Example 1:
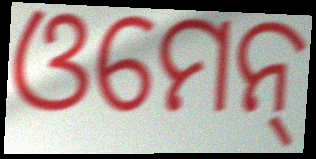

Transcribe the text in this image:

ଓମେନ୍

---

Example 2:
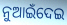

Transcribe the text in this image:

ନୁଆଇଁଦେଇ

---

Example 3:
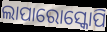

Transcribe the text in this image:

ଲାପାରୋସ୍କୋପି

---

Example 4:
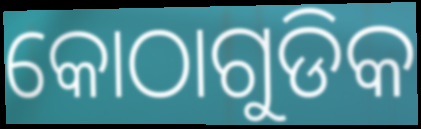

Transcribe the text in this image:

କୋଠାଗୁଡିକ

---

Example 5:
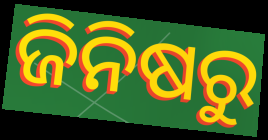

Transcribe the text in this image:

ଜିନିଷରୁ